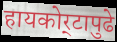
हायकोर्टापुढे